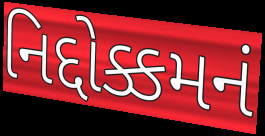
નિદ્દોક્કમનં